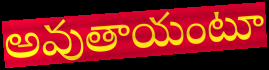
అవుతాయంటూ